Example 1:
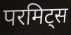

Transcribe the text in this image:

परमिट्स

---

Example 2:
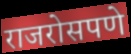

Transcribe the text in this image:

राजरोसपणे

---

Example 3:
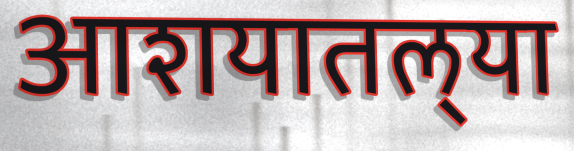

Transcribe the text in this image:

आशयातल्या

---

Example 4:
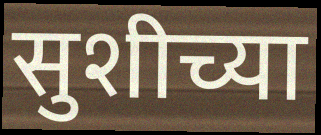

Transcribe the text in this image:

सुशीच्या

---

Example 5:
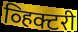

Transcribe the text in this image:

व्हिक्टरी